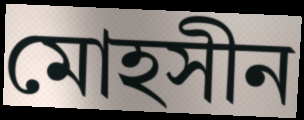
মোহসীন